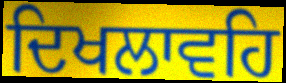
ਦਿਖਲਾਵਹਿ